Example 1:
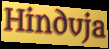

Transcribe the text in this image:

Hinduja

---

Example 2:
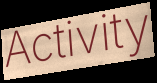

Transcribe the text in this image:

Activity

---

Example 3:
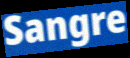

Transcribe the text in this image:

Sangre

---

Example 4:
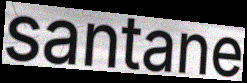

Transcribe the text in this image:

santane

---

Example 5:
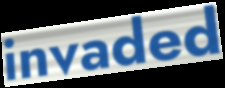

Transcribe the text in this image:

invaded